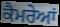
ਕੈਮਰੇਆਂ